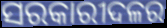
ସରକାରୀଦଳର